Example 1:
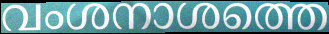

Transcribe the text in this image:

വംശനാശത്തെ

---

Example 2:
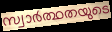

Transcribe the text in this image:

സ്വാർത്ഥതയുടെ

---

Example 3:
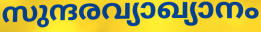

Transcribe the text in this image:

സുന്ദരവ്യാഖ്യാനം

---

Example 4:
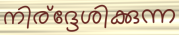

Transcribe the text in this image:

നിര്ദ്ദേശിക്കുന്ന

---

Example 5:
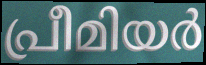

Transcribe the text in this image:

പ്രീമിയർ